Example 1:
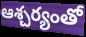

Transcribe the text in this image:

ఆశ్చర్యంతో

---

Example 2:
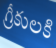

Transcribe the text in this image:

గ్రీకులకి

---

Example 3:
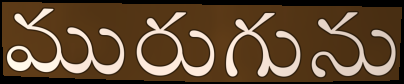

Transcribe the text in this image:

మురుగును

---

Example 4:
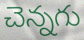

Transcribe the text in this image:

చెన్నగు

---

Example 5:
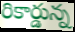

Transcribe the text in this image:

రికార్డున్న